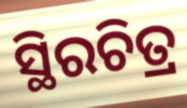
ସ୍ଥିରଚିତ୍ର